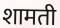
शामती